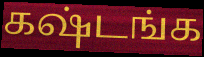
கஷ்டங்க